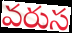
వరుస